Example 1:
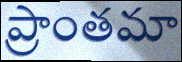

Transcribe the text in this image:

ప్రాంతమా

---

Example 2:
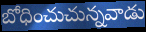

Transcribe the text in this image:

బోధించుచున్నవాడు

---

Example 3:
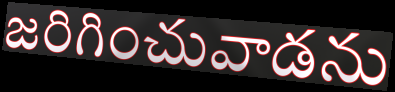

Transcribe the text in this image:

జరిగించువాడను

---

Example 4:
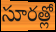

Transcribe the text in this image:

సూరత్లో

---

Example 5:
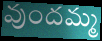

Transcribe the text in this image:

వుందమ్మ